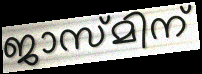
ജാസ്മിന്